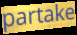
partake